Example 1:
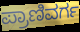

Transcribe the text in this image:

ಪ್ರಾಣಿವರ್ಗ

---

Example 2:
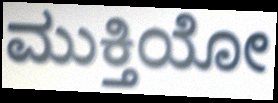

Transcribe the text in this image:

ಮುಕ್ತಿಯೋ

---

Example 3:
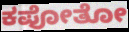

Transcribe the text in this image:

ಕಪೋತೋ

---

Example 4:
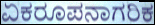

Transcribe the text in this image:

ಏಕರೂಪನಾಗರಿಕ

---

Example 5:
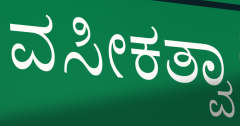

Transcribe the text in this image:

ವಸೀಕತ್ವಾ